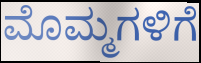
ಮೊಮ್ಮಗಳಿಗೆ